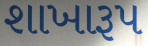
શાખારૂપ